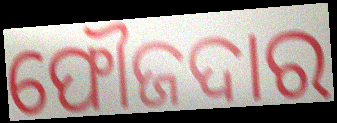
ଫୌଜଦାର